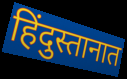
हिंदुस्तानात